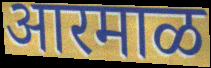
आरमाळ